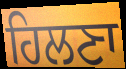
ਹਿਲਣਾ